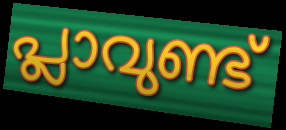
പ്ലാവുണ്ട്